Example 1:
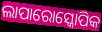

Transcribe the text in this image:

ଲାପାରୋସ୍କୋପିକ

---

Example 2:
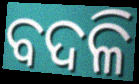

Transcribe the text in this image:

ବଦଳି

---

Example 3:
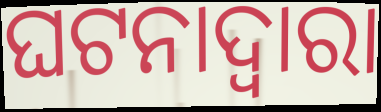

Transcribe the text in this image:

ଘଟନାଦ୍ୱାରା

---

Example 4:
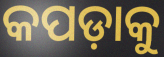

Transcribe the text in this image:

କପଡ଼ାକୁ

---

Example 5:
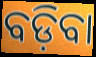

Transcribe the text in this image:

ବଡ଼ିବା